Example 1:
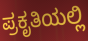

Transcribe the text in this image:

ಪ್ರಕೃತಿಯಲ್ಲಿ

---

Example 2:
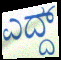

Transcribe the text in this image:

ಎದ್ದ್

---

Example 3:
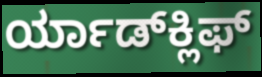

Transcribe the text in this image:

ರ್ಯಾಡ್‍ಕ್ಲಿಫ್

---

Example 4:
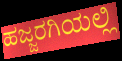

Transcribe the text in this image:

ಹಜ್ಜರಗಿಯಲ್ಲಿ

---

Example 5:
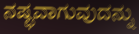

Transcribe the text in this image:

ನಷ್ಟವಾಗುವುದನ್ನು